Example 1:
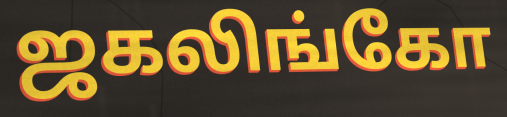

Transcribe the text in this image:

ஜகலிங்கோ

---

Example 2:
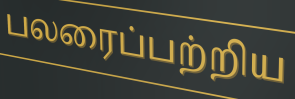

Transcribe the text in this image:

பலரைப்பற்றிய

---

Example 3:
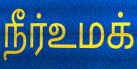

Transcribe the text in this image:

நீர்உமக்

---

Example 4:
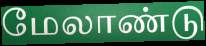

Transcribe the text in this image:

மேலாண்டு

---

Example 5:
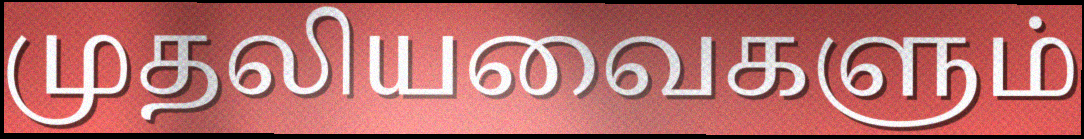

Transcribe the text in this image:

முதலியவைகளும்